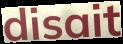
disait